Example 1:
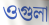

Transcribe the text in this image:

ওগুলা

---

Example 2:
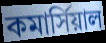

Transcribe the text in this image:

কমার্সিয়াল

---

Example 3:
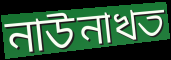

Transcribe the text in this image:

নাউনাখত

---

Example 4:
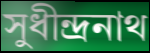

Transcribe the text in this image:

সুধীন্দ্রনাথ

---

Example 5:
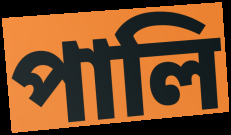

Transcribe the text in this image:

পালি